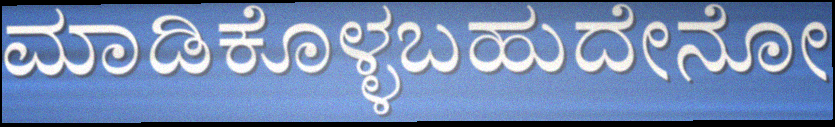
ಮಾಡಿಕೊಳ್ಳಬಹುದೇನೋ